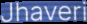
Jhaveri